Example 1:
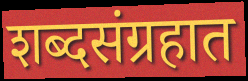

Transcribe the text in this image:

शब्दसंग्रहात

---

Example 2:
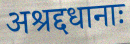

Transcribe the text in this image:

अश्रद्दधानाः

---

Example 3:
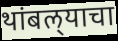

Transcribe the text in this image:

थांबल्याचा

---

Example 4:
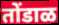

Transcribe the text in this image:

तोंडाळ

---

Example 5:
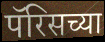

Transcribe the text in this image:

पॅरिसच्या